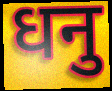
धनु